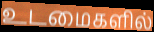
உடமைகளில்